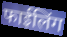
फाईलिंग